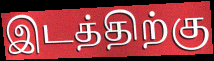
இடத்திற்கு